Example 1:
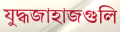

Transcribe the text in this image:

যুদ্ধজাহাজগুলি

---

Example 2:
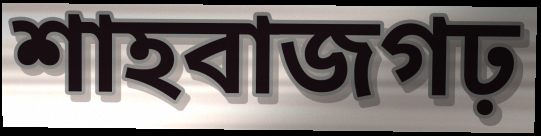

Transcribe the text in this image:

শাহবাজগঢ়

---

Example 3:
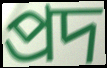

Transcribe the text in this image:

প্রদ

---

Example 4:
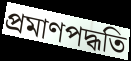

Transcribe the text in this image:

প্রমাণপদ্ধতি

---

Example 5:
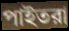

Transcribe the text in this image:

পাইতরা